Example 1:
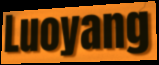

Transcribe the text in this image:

Luoyang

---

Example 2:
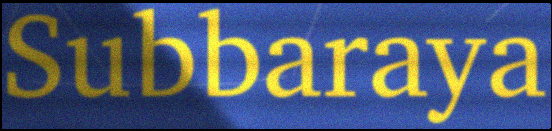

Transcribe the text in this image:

Subbaraya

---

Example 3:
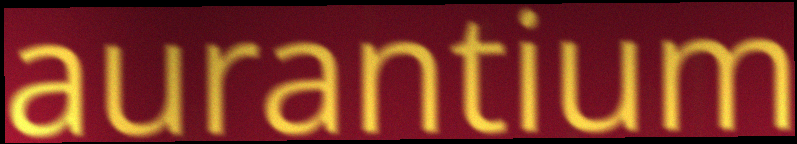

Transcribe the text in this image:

aurantium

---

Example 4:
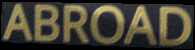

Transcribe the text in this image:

ABROAD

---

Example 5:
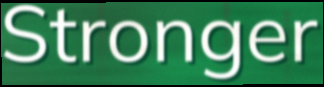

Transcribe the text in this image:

Stronger